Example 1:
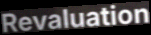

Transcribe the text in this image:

Revaluation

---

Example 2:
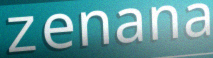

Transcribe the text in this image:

zenana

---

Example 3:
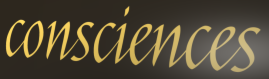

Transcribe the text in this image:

consciences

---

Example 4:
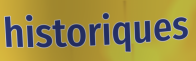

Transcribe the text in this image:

historiques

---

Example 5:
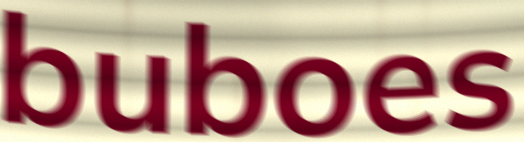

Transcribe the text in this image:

buboes